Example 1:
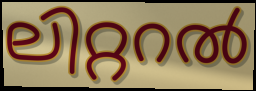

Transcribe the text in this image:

ലിറ്ററൽ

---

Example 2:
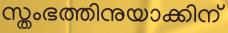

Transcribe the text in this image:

സ്തംഭത്തിനുയാക്കിന്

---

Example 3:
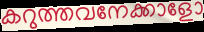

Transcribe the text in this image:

കറുത്തവനേക്കാളോ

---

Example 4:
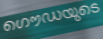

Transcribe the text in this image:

ഗൌഡയുടെ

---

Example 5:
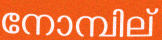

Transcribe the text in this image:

നോമ്പില്